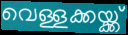
വെള്ളക്കയ്ക്ക്